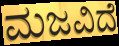
ಮಜವಿದೆ